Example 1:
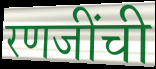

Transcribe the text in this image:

रणजींची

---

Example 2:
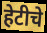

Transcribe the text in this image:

हेटीचे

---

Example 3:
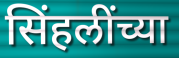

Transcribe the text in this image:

सिंहलींच्या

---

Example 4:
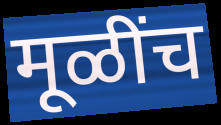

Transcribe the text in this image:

मूळींच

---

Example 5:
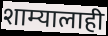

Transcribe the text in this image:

शाम्यालाही